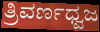
ತ್ರಿವರ್ಣಧ್ವಜ